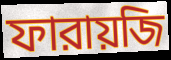
ফারায়জি